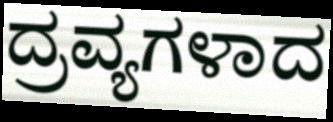
ದ್ರವ್ಯಗಳಾದ